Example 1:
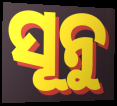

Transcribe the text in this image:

ସୂନୁ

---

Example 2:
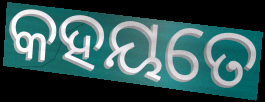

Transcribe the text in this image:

କହୟତେ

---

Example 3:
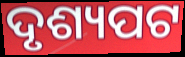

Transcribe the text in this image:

ଦୃଶ୍ୟପଟ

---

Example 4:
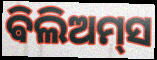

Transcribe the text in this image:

ଵିଲିଅମ୍‌ସ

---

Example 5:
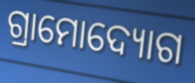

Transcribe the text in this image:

ଗ୍ରାମୋଦ୍ୟୋଗ